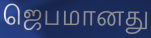
ஜெபமானது